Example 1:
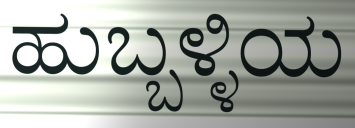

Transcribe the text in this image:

ಹುಬ್ಬಳ್ಳಿಯ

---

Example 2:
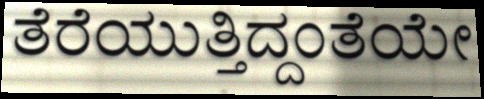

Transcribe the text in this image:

ತೆರೆಯುತ್ತಿದ್ದಂತೆಯೇ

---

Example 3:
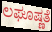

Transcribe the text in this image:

ಲಘೂಷ್ಣತೆ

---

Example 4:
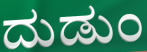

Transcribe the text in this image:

ದುಡುಂ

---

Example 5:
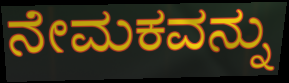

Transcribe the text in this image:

ನೇಮಕವನ್ನು